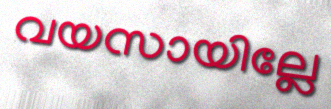
വയസായില്ലേ